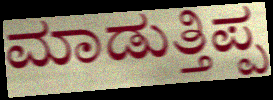
ಮಾಡುತ್ತಿಪ್ಪ